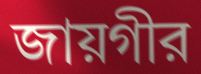
জায়গীর